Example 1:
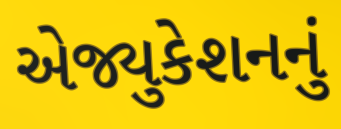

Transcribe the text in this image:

એજ્યુકેશનનું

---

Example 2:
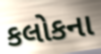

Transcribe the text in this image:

કલોકના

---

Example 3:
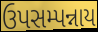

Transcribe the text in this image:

ઉપસમ્પન્નાય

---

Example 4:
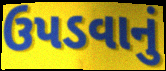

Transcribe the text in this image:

ઉપડવાનું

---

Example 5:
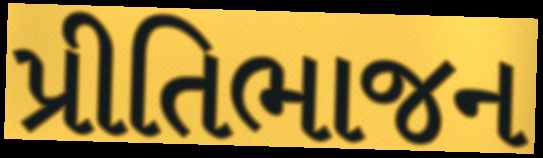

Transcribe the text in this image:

પ્રીતિભાજન